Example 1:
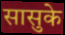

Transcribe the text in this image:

सासुके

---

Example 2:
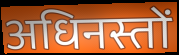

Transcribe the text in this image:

अधिनस्तों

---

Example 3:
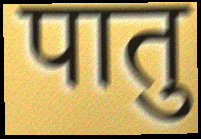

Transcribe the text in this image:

पातु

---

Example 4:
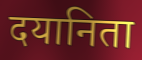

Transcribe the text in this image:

दयानिता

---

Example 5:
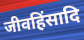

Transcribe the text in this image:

जीवहिंसादि